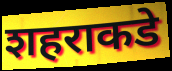
शहराकडे